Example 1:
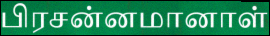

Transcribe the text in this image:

பிரசன்னமானாள்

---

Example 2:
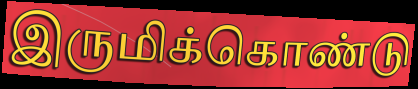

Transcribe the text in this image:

இருமிக்கொண்டு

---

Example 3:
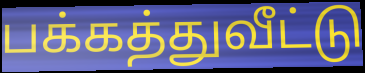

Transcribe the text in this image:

பக்கத்துவீட்டு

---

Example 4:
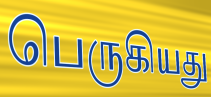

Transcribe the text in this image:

பெருகியது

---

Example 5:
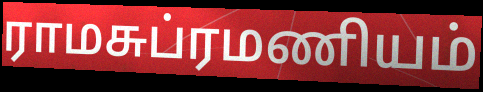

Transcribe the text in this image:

ராமசுப்ரமணியம்